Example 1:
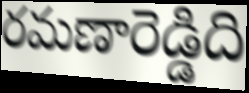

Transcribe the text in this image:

రమణారెడ్డిది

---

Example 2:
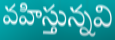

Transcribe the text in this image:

వహిస్తున్నవి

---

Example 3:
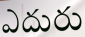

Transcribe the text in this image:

ఎదురు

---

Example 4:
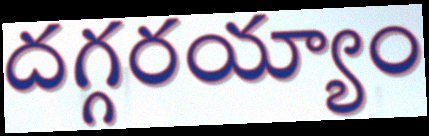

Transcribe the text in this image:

దగ్గరయ్యాం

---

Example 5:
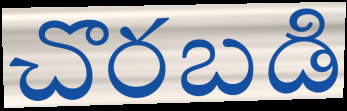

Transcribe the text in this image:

చొరబడి